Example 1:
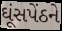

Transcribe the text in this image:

ઘૂંસપેંઠને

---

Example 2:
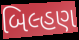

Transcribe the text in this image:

બિલ્હણ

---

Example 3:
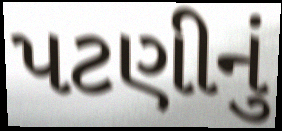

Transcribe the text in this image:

પટણીનું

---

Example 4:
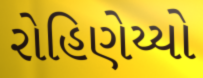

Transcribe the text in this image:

રોહિણેય્યો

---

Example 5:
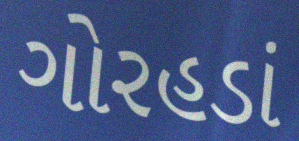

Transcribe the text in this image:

ગોરહડાં